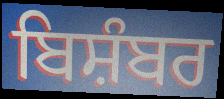
ਬਿਸ਼ੰਬਰ